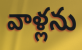
వాళ్లను